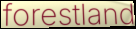
forestland